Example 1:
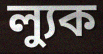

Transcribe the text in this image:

ল্যুক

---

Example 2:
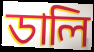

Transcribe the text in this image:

ডালি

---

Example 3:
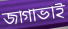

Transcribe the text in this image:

জাগাভাই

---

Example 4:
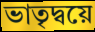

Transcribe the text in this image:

ভাতৃদ্বয়ে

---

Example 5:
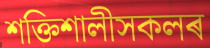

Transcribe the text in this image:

শক্তিশালীসকলৰ